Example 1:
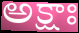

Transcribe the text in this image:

అక్షాః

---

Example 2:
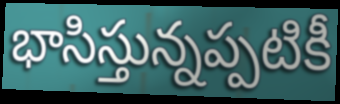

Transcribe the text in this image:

భాసిస్తున్నప్పటికీ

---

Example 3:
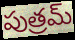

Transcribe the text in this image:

పుత్రమ్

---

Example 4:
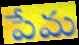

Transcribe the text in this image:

పేమ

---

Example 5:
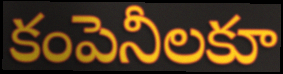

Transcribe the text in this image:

కంపెనీలకూ